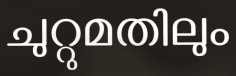
ചുറ്റുമതിലും